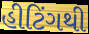
હીટિંગથી